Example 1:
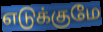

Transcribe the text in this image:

எடுக்குமே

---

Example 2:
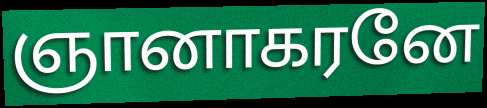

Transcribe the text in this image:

ஞானாகரனே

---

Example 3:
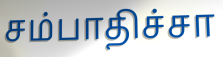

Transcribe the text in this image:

சம்பாதிச்சா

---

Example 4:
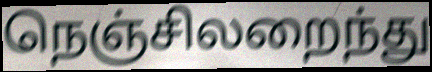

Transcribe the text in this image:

நெஞ்சிலறைந்து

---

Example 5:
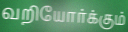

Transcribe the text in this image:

வறியோர்க்கும்